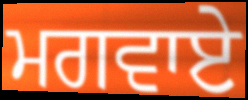
ਮਗਵਾਏ